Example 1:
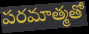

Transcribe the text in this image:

పరమాత్మతో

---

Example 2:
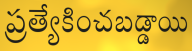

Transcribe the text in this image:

ప్రత్యేకించబడ్డాయి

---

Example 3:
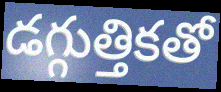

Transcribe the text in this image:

డగ్గుత్తికతో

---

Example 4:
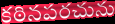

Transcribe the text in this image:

కఠినపరచును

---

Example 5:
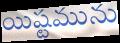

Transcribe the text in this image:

యిష్టమును